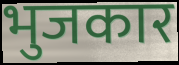
भुजकार